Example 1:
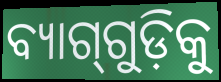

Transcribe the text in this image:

ବ୍ୟାଗ୍‍ଗୁଡ଼ିକୁ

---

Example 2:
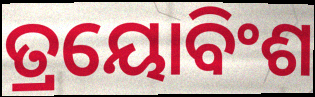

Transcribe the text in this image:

ତ୍ରୟୋବିଂଶ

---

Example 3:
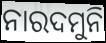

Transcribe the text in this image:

ନାରଦମୁନି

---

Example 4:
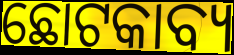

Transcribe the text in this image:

ଛୋଟକାବ୍ୟ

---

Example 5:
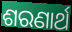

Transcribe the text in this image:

ଶରଣାର୍ଥ